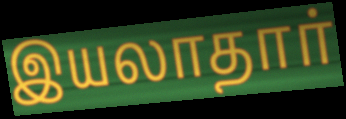
இயலாதார்